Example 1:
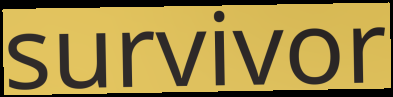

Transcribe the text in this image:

survivor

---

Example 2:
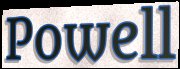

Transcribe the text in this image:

Powell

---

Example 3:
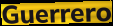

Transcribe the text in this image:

Guerrero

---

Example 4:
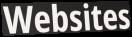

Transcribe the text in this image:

Websites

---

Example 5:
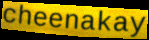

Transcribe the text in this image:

cheenakay